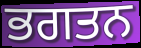
ਭਗਤਨ